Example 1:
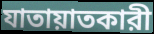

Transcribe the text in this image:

যাতায়াতকারী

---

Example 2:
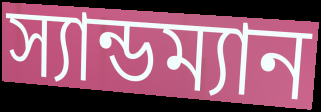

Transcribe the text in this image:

স্যান্ডম্যান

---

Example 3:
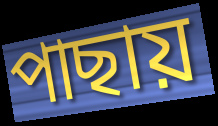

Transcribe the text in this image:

পাছায়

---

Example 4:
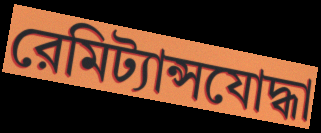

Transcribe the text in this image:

রেমিট্যান্সযোদ্ধা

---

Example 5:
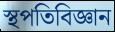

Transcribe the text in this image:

স্থপতিবিজ্ঞান